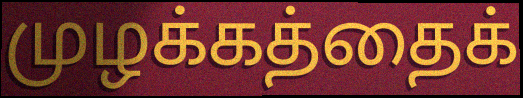
முழக்கத்தைக்